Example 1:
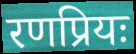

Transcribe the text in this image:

रणप्रियः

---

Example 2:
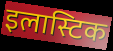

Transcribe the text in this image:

इलास्टिक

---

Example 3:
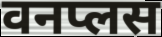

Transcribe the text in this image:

वनप्लस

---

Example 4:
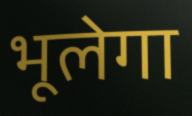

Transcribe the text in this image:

भूलेगा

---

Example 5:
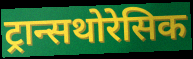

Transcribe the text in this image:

ट्रान्सथोरेसिक